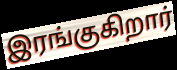
இரங்குகிறார்